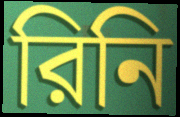
রিনি